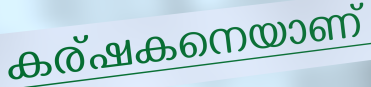
കര്ഷകനെയാണ്